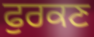
ਫੁਰਕਣ